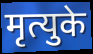
मृत्युके